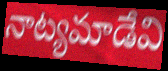
నాట్యమాడేవి